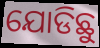
ଯୋଡିଛୁ